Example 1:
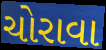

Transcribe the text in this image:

ચોરાવા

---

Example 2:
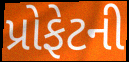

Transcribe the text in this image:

પ્રોફેટની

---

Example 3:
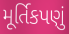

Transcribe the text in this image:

મૂર્તિકપણું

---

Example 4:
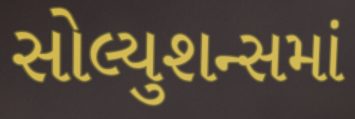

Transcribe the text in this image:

સોલ્યુશન્સમાં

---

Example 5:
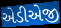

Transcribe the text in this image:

એડીએજી